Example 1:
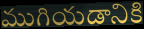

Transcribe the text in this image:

ముగియడానికి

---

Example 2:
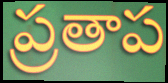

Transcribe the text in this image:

ప్రతాప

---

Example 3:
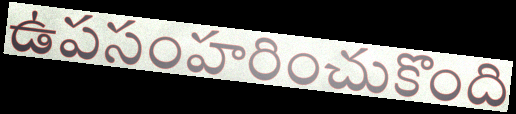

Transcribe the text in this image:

ఉపసంహరించుకొంది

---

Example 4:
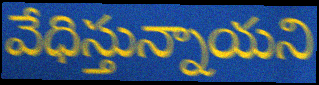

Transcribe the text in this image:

వేధిస్తున్నాయని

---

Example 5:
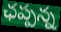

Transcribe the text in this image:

ఛప్పన్న